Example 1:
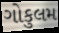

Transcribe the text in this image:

ગોકુલમ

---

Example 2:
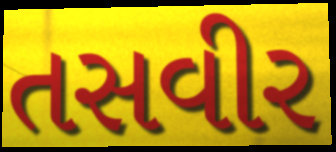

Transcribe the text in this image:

તસવીર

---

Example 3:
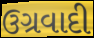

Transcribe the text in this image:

ઉગ્રવાદી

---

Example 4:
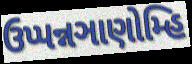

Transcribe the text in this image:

ઉપ્પન્નઞાણોમ્હિ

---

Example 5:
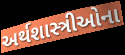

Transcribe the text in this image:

અર્થશાસ્ત્રીઓના